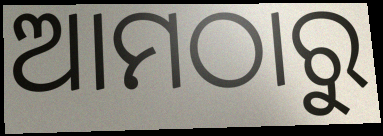
ଆମଠାରୁ